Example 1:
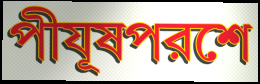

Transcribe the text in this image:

পীযূষপরশে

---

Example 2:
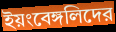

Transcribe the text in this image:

ইয়ংবেঙ্গলিদের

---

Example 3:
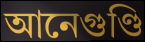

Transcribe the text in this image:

আনেগুণ্ডি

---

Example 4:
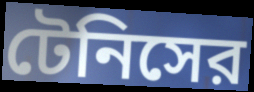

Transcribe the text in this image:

টেনিসের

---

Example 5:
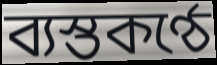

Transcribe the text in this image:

ব্যস্তকণ্ঠে